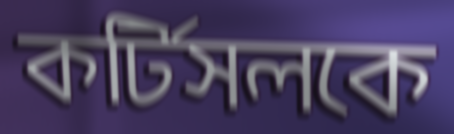
কর্টিসলকে